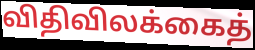
விதிவிலக்கைத்